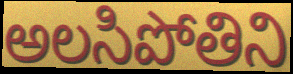
అలసిపోతిని